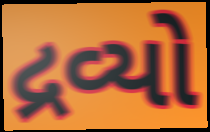
દ્રવ્યો